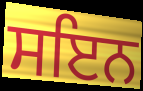
ਸਇਨ